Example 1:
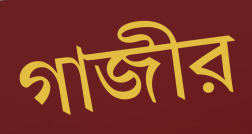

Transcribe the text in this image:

গাজীর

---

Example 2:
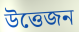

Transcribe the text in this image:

উত্তেজন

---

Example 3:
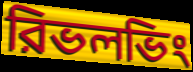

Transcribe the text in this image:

রিভলভিং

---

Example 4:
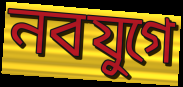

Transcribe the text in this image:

নবযুগে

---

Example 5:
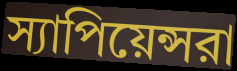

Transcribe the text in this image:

স্যাপিয়েন্সরা